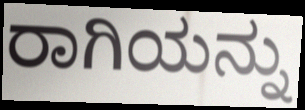
ರಾಗಿಯನ್ನು